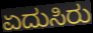
ಏದುಸಿರು